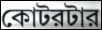
কোটরটার